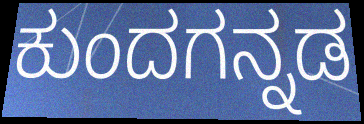
ಕುಂದಗನ್ನಡ